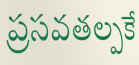
ప్రసవతల్పకే